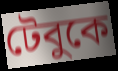
টেবুকে